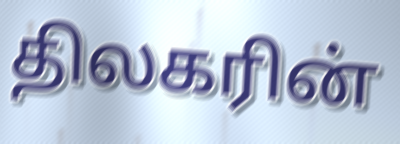
திலகரின்